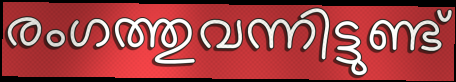
രംഗത്തുവന്നിട്ടുണ്ട്